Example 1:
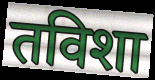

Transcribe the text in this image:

तविशा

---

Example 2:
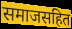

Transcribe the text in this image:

समाजसहित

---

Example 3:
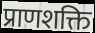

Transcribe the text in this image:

प्राणशक्ति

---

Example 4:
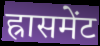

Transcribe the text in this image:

ह्रासमेंट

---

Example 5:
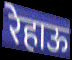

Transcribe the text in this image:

रेहाऊ